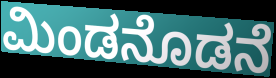
ಮಿಂಡನೊಡನೆ